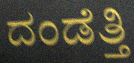
ದಂಡೆತ್ತಿ